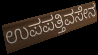
ಉಪಪತ್ತಿವಸೇನ